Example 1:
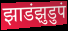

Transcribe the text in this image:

झाडंझुडुपं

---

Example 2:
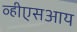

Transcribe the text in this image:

व्हीएसआय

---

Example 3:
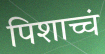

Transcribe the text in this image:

पिशाच्चं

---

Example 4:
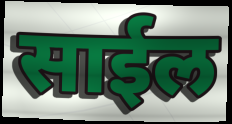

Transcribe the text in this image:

साईल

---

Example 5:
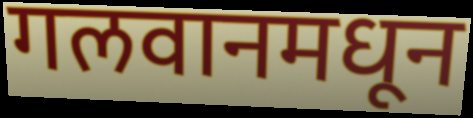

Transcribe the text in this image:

गलवानमधून